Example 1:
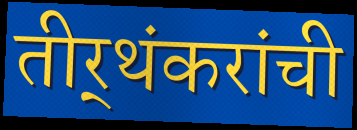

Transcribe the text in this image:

तीर्थंकरांची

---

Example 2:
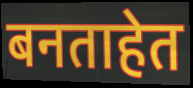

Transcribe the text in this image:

बनताहेत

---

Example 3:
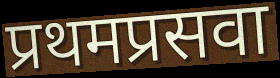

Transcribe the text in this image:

प्रथमप्रसवा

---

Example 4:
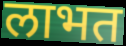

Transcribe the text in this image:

लाभत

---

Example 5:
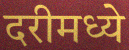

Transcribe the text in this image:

दरीमध्ये